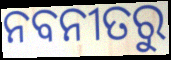
ନବନୀତରୁ